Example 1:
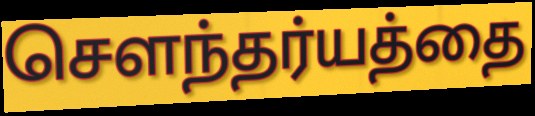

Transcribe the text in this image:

செளந்தர்யத்தை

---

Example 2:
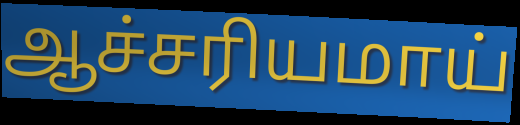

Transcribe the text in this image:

ஆச்சரியமாய்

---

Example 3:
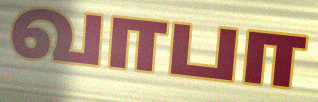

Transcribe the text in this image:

வாபா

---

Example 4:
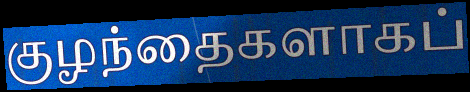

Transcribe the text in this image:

குழந்தைகளாகப்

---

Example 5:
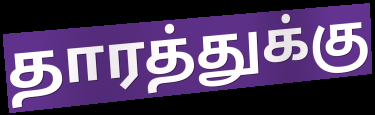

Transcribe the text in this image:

தாரத்துக்கு